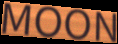
MOON